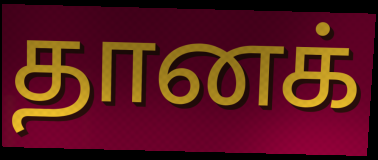
தானக்